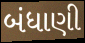
બંધાણી